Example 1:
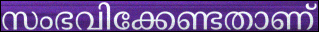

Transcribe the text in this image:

സംഭവിക്കേണ്ടതാണ്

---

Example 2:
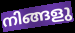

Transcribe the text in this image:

നിങ്ങളു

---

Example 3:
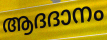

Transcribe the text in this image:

ആദദാനം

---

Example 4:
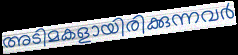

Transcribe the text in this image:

അടിമകളായിരിക്കുന്നവർ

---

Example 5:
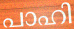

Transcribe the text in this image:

പാഹി